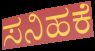
ಸನಿಹಕೆ